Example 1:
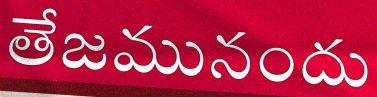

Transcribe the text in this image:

తేజమునందు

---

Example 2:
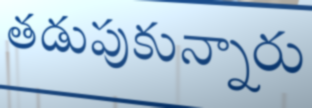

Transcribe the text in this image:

తడుపుకున్నారు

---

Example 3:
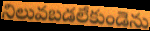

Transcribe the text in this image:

నిలువబడలేకుండెను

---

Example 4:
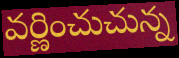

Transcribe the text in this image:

వర్ణించుచున్న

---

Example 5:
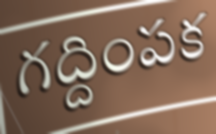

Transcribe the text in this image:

గద్దింపక